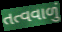
તત્વવાળું